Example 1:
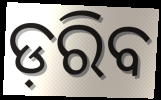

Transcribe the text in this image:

ଡ଼ରିବ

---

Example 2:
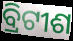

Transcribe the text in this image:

ବ୍ରିଟୀଶ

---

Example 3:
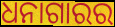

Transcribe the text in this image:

ଧନାଗାରର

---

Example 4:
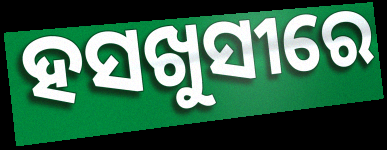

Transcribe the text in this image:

ହସଖୁସୀରେ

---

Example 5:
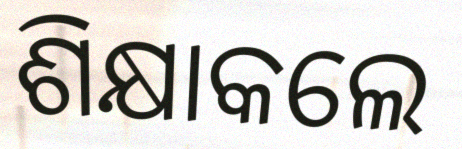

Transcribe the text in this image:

ଶିକ୍ଷାକଲେ